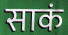
साकं